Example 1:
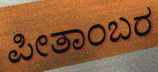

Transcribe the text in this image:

ಪೀತಾಂಬರ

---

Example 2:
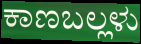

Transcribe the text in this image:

ಕಾಣಬಲ್ಲಳು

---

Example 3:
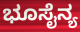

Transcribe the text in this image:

ಭೂಸೈನ್ಯ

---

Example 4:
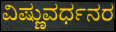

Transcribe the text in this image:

ವಿಷ್ಣುವರ್ಧನರ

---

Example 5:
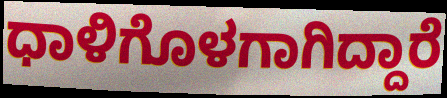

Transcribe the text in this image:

ಧಾಳಿಗೊಳಗಾಗಿದ್ದಾರೆ